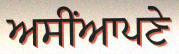
ਅਸੀਂਆਪਣੇ